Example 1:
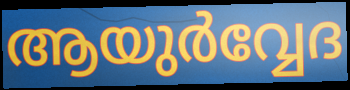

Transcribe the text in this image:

ആയുർവ്വേദ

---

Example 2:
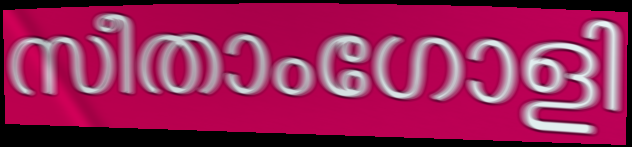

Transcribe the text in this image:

സീതാംഗോളി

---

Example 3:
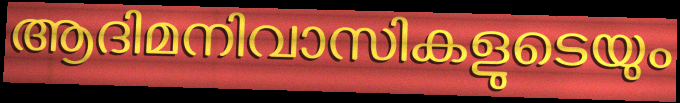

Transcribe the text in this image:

ആദിമനിവാസികളുടെയും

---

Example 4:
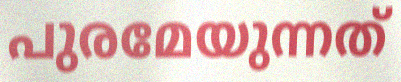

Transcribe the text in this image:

പുരമേയുന്നത്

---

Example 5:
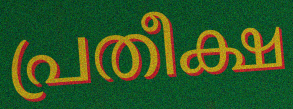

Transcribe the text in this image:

പ്രതീക്ഷ